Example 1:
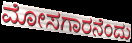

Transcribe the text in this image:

ಮೋಸಗಾರನೆಂದು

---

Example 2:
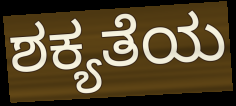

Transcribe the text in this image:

ಶಕ್ಯತೆಯ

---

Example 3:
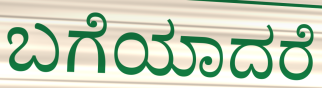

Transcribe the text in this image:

ಬಗೆಯಾದರೆ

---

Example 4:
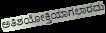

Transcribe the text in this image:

ಅತಿಶಯೋಕ್ತಿಯಾಗಲಾರದು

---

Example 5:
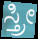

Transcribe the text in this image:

ಸ್ತ್ರೀ